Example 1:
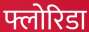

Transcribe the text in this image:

फ्लोरिडा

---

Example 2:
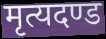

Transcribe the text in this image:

मृत्यदण्ड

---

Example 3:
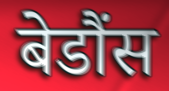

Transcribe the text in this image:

बेडौंस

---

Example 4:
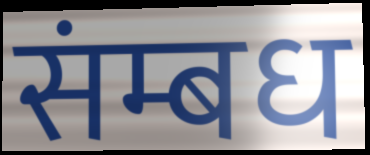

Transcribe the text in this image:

संम्बध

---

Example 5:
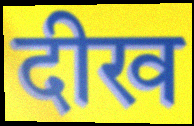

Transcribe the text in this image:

दीख